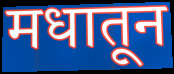
मधातून